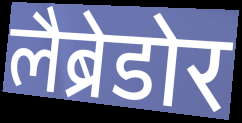
लैब्रेडोर